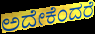
ಅದೇಕೆಂದರೆ